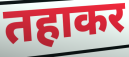
तहाकर